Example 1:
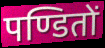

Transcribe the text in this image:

पण्डितों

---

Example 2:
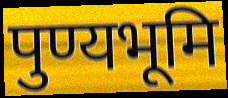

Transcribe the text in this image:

पुण्यभूमि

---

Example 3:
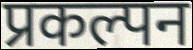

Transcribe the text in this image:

प्रकल्पन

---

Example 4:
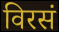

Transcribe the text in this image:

विरसं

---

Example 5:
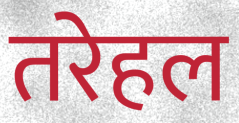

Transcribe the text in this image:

तरेहल